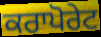
ਕਰਾਪੋਰੇਟ